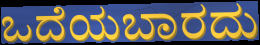
ಒದೆಯಬಾರದು